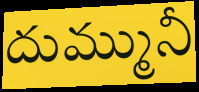
దుమ్మునీ